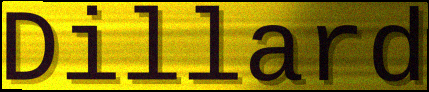
Dillard